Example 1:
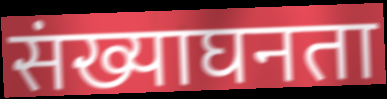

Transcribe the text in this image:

संख्याघनता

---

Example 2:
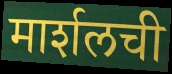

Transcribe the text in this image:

मार्शलची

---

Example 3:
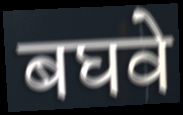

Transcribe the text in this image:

बघवे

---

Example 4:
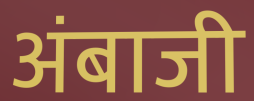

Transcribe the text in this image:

अंबाजी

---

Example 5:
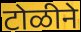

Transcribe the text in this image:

टोळीने